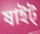
ষাইট্